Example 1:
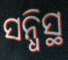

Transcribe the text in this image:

ସନ୍ଧିସ୍ଥ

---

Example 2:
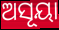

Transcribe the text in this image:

ଅସୂୟା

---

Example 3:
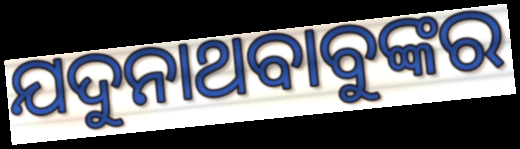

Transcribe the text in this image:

ଯଦୁନାଥବାବୁଙ୍କର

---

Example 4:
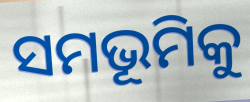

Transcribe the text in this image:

ସମଭୂମିକୁ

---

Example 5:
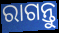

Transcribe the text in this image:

ରାଗନ୍ତୁ